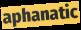
aphanatic